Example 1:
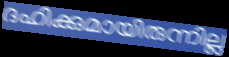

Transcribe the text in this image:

ദഹിക്കുമായിരുന്നില്ല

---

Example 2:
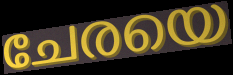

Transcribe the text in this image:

ചേരയെ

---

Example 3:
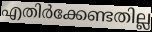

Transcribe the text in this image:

എതിർക്കേണ്ടതില്ല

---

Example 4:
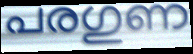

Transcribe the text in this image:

പരഗുണ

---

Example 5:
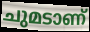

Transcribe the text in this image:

ചുമടാണ്